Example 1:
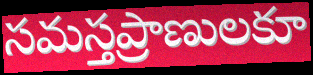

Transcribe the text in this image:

సమస్తప్రాణులకూ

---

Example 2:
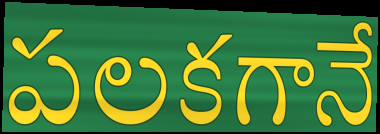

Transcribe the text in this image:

పలకగానే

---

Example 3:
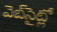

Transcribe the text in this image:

వెబ్‌సైట్లో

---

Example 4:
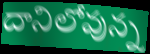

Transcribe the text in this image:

దానిలోవున్న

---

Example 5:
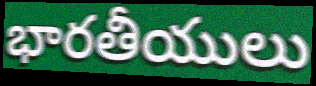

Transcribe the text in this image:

భారతీయులు